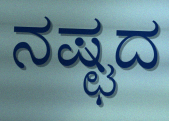
ನಷ್ಟದ